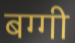
बग्गी